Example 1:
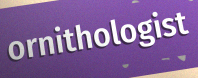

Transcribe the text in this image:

ornithologist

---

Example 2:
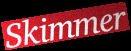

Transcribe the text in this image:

Skimmer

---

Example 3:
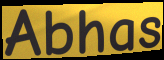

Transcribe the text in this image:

Abhas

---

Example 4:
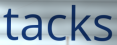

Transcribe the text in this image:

tacks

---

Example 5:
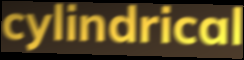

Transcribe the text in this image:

cylindrical